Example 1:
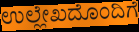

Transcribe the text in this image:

ಉಲ್ಲೇಖದೊಂದಿಗೆ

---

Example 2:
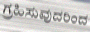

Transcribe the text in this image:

ಗ್ರಹಿಸುವುದರಿಂದ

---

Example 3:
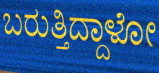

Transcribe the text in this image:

ಬರುತ್ತಿದ್ದಾಳೋ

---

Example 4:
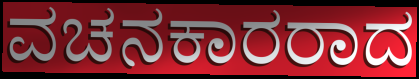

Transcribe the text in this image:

ವಚನಕಾರರಾದ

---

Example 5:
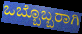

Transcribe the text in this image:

ಒಬ್ಬೊಬ್ಬರಾಗಿ